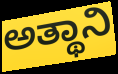
ಅತ್ಥಾನಿ